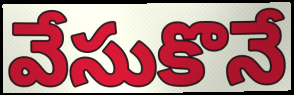
వేసుకొనే